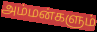
அம்மன்களும்